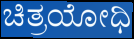
ಚಿತ್ರಯೋಧಿ